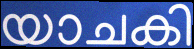
യാചകി